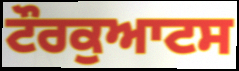
ਟੌਰਕੁਆਟਸ